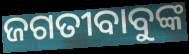
ଜଗତୀବାବୁଙ୍କ